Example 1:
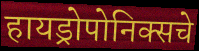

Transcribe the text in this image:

हायड्रोपोनिक्सचे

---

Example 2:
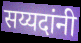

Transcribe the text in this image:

सय्यदांनी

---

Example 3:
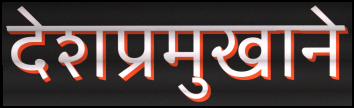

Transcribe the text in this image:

देशप्रमुखाने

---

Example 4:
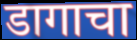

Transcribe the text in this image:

डागाचा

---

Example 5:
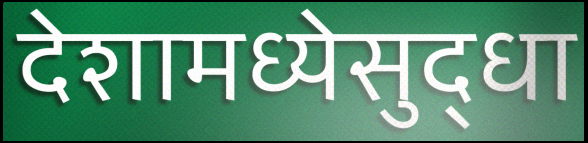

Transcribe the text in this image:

देशामध्येसुद्धा